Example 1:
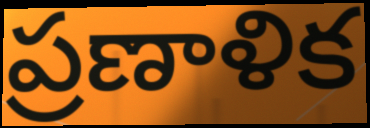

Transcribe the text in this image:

ప్రణాళిక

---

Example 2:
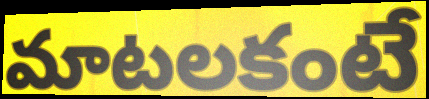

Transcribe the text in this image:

మాటలకంటే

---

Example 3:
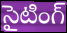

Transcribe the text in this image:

సైటింగ్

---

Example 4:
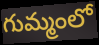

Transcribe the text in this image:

గుమ్మంలో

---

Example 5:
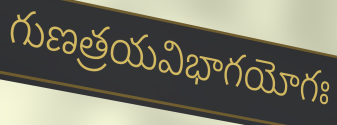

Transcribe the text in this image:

గుణత్రయవిభాగయోగః